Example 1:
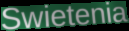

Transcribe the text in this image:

Swietenia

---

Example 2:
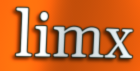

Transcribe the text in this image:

limx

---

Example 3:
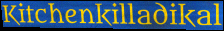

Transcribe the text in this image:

Kitchenkilladikal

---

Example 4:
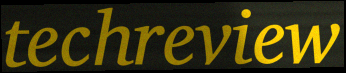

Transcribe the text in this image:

techreview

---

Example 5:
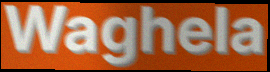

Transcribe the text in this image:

Waghela